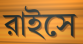
রাইসে